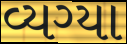
વ્યગ્યા